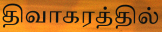
திவாகரத்தில்